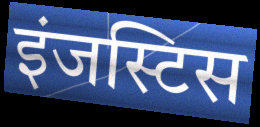
इंजस्टिस